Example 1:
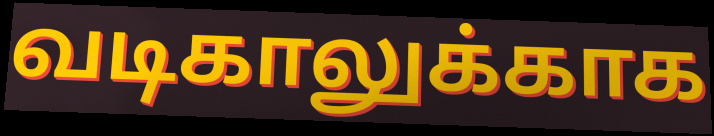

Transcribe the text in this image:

வடிகாலுக்காக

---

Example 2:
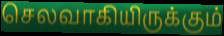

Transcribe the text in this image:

செலவாகியிருக்கும்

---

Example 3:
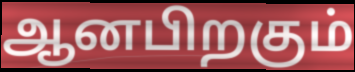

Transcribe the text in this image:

ஆனபிறகும்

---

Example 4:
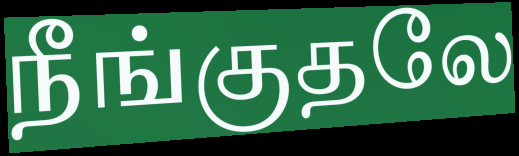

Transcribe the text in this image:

நீங்குதலே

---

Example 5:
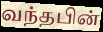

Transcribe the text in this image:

வந்தபின்